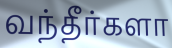
வந்தீர்களா